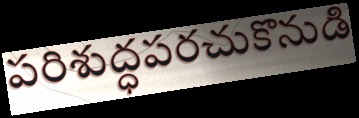
పరిశుద్ధపరచుకొనుడి